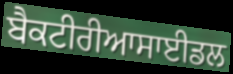
ਬੈਕਟੀਰੀਆਸਾਈਡਲ